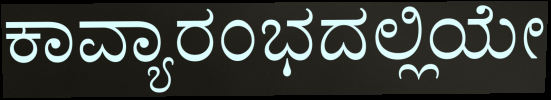
ಕಾವ್ಯಾರಂಭದಲ್ಲಿಯೇ